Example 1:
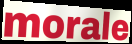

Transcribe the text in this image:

morale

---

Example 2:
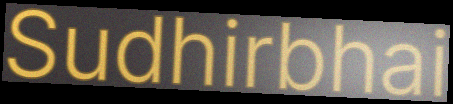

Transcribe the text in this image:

Sudhirbhai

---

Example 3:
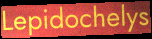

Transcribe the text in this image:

Lepidochelys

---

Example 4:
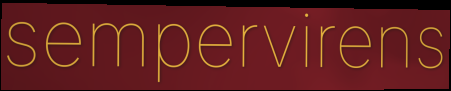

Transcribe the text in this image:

sempervirens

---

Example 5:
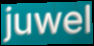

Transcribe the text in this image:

juwel